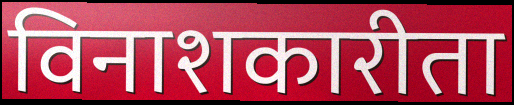
विनाशकारीता